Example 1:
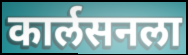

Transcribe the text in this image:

कार्लसनला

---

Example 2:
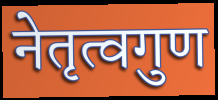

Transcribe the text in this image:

नेतृत्वगुण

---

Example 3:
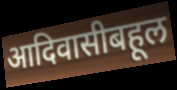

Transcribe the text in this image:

आदिवासीबहूल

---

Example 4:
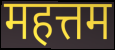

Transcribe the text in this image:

महत्तम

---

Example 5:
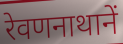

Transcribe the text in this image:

रेवणनाथानें